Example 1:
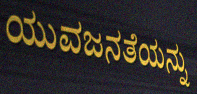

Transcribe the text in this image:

ಯುವಜನತೆಯನ್ನು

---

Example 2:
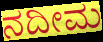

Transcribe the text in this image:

ನದೀಮ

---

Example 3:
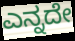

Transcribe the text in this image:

ಎನ್ನದೇ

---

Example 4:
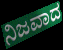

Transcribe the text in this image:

ನಿಜವಾದ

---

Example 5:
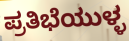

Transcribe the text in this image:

ಪ್ರತಿಭೆಯುಳ್ಳ